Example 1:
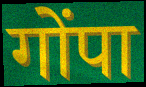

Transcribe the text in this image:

गोंपा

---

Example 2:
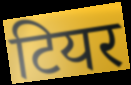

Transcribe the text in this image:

टियर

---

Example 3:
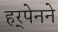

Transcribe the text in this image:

हर्पेनने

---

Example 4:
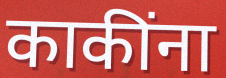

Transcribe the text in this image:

काकींना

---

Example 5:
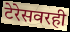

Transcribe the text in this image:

टेरेसवरही